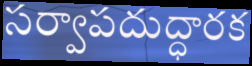
సర్వాపదుద్ధారక